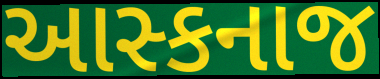
આસ્કનાજ